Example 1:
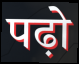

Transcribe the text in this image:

पढ़ो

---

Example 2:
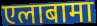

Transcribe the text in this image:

एलाबामा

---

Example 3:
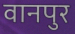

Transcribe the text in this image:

वानपुर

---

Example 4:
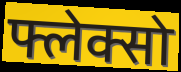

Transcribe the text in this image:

फ्लेक्सो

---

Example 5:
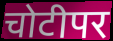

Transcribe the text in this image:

चोटीपर